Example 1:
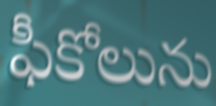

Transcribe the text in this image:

ఫీకోలును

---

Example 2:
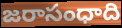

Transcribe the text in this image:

జరాసంధాది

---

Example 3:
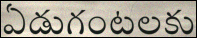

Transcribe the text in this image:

ఏడుగంటలకు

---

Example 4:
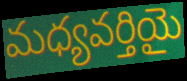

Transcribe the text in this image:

మధ్యవర్తియై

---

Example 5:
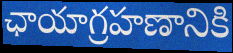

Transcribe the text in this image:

ఛాయాగ్రహణానికి